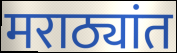
मराठ्यांत